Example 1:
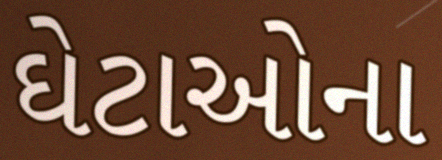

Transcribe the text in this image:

ઘેટાઓના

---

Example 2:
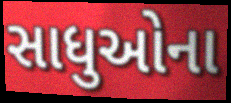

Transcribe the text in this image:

સાધુઓના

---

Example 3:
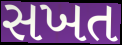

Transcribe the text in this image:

સખત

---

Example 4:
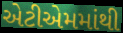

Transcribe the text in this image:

એટીએમમાંથી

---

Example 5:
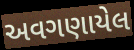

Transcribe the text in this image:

અવગણાયેલ